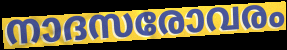
നാദസരോവരം